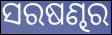
ସରଷଣ୍ଢର